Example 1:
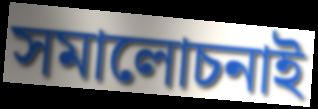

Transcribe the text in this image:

সমালোচনাই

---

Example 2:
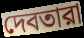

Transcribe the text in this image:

দেবতারা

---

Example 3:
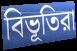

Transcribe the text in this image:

বিভূতিরা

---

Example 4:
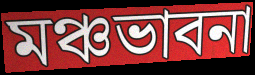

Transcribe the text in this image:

মঞ্চভাবনা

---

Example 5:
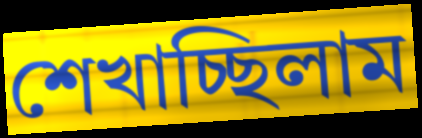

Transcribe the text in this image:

শেখাচ্ছিলাম